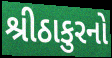
શ્રીઠાકુરનો